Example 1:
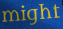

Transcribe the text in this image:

might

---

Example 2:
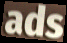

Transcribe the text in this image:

ads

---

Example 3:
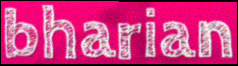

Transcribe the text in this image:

bharian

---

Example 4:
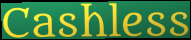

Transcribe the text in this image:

Cashless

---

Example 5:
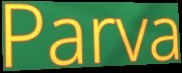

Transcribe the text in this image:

Parva